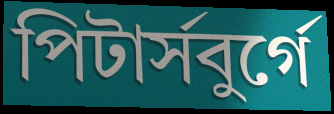
পিটাৰ্সবুৰ্গে